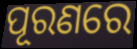
ପୂରଣରେ